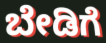
ಬೇಡಿಗೆ